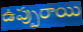
ఉప్పురాయి